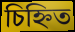
চিহ্নিত